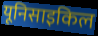
यूनिसाइकिल